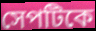
সেপটিকে